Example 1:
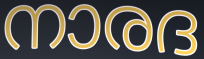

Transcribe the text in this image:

നാരദ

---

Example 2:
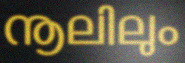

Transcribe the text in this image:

നൂലിലും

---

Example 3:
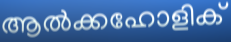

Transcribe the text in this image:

ആൽക്കഹോളിക്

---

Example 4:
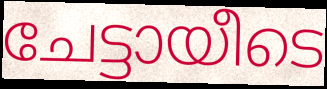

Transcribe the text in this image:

ചേട്ടായീടെ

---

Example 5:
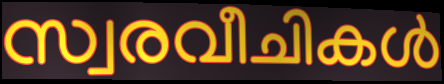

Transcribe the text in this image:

സ്വരവീചികൾ